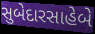
સુબેદારસાહેબે